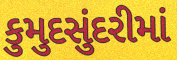
કુમુદસુંદરીમાં